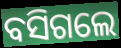
ବସିଗଲେ